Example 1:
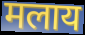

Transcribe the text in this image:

मलाय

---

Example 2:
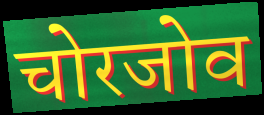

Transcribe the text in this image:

चोरजोव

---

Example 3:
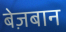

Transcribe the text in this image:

बेज़बान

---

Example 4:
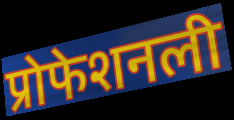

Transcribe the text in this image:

प्रोफेशनली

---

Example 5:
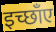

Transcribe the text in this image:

इच्छाँए